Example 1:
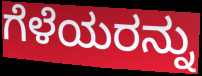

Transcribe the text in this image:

ಗೆಳೆಯರನ್ನು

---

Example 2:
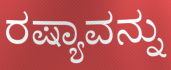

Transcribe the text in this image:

ರಷ್ಯಾವನ್ನು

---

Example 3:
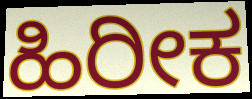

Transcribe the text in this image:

ಹಿರೀಕ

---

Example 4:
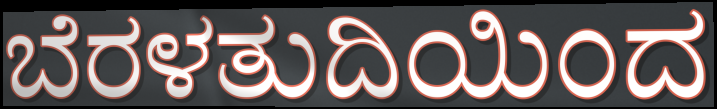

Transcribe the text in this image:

ಬೆರಳತುದಿಯಿಂದ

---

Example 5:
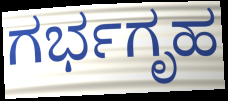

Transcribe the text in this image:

ಗರ್ಭಗೃಹ